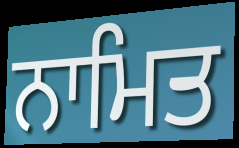
ਨਾਮਿਤ